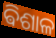
ଵିଶାଳ